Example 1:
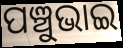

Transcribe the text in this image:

ପଞ୍ଚୁଭାଇ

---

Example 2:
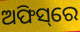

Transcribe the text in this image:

ଅଫିସ୍‌ରେ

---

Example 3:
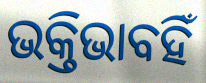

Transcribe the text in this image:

ଭକ୍ତିଭାବହିଁ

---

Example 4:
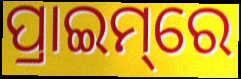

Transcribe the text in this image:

ପ୍ରାଇମ୍‌ରେ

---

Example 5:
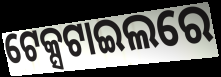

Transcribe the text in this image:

ଟେକ୍ସଟାଇଲରେ